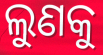
ଲୁଣକୁ